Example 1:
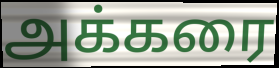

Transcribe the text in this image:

அக்கரை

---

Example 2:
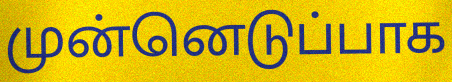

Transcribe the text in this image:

முன்னெடுப்பாக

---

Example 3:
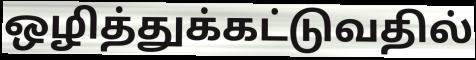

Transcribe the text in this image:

ஒழித்துக்கட்டுவதில்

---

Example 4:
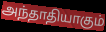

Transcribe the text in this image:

அந்தாதியாகும்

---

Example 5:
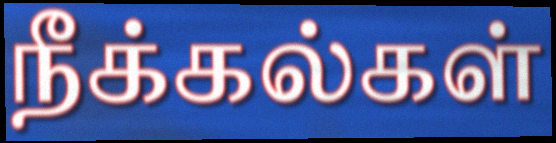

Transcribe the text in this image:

நீக்கல்கள்